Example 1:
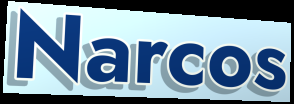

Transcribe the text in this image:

Narcos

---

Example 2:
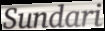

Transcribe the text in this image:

Sundari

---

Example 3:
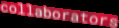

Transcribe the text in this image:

collaborators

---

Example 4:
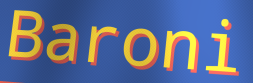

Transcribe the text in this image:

Baroni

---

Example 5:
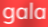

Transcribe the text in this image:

gala